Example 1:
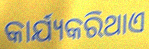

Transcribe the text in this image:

କାର୍ଯ୍ୟକରିଥାଏ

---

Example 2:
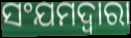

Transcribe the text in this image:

ସଂଯମଦ୍ୱାରା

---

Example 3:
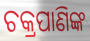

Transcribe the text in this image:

ଚକ୍ରପାଣିଙ୍କ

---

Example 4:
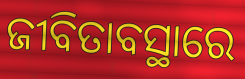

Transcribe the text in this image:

ଜୀବିତାବସ୍ଥାରେ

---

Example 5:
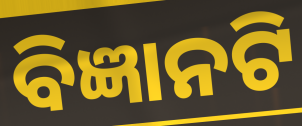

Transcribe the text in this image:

ବିଜ୍ଞାନଟି